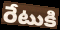
రేటుకి